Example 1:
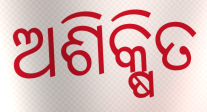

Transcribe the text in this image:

ଅଶିକ୍ଷିତ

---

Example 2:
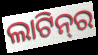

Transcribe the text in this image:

ଲାଟିନ୍‌ର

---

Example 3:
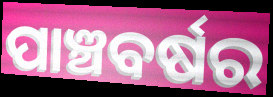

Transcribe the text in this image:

ପାଞ୍ଚବର୍ଷର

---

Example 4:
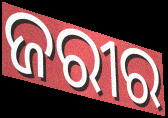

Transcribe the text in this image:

ଜରୀର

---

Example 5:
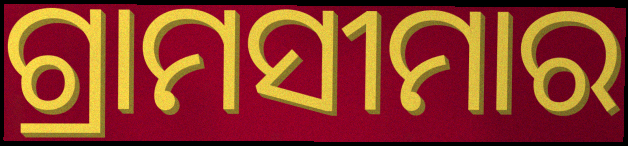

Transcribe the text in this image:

ଗ୍ରାମସୀମାର